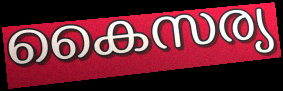
കൈസര്യ